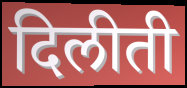
दिलीती